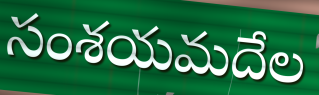
సంశయమదేల